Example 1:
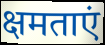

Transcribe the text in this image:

क्षमताएं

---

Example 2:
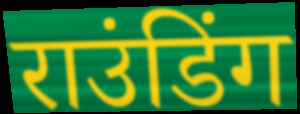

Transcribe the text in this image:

राउंडिंग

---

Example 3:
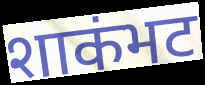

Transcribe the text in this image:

शाकंभट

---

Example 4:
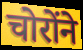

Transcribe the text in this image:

चोरोंने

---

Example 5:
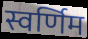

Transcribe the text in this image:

स्‍वर्णिम